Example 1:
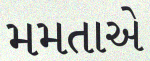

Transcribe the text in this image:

મમતાએ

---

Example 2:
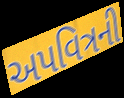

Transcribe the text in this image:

અપવિત્રની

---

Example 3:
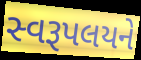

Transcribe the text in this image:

સ્વરૂપલયને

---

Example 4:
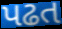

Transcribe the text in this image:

પઢત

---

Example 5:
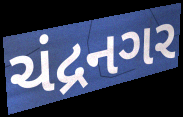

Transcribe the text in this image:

ચંદ્રનગર